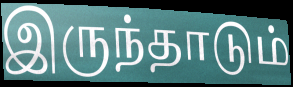
இருந்தாடும்